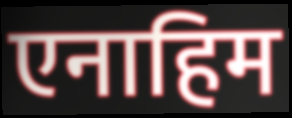
एनाहिम